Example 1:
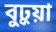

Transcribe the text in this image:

বুঢ়ুয়া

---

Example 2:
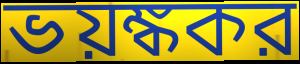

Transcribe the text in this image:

ভয়ঙ্ককর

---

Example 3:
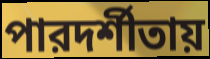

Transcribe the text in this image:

পারদর্শীতায়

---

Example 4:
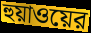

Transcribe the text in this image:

হুয়াওয়ের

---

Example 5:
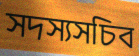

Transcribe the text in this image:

সদস্যসচিব